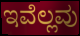
ಇವೆಲ್ಲವು